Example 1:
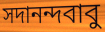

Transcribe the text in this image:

সদানন্দবাবু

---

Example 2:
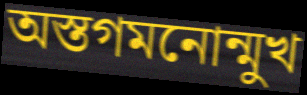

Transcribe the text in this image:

অস্তগমনোন্মুখ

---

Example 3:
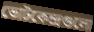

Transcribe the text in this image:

ভোটকেন্দ্রগুলো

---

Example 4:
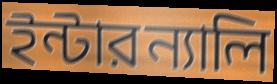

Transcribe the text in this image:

ইন্টারন্যালি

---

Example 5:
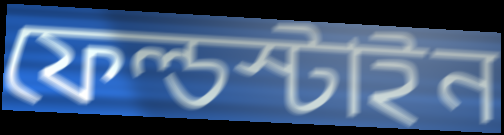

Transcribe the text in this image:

ফেল্ডস্টাইন